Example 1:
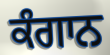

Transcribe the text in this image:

ਕੰਗਾਨ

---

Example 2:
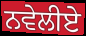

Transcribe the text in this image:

ਨਵੇਲੀਏ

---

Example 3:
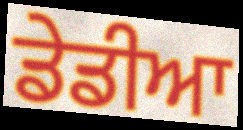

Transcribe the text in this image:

ਡੇਡੀਆ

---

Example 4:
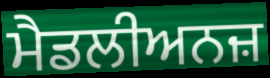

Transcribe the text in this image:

ਮੈਡਲੀਅਨਜ਼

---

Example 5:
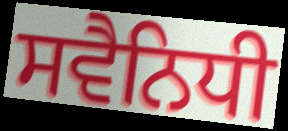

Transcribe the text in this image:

ਸਵੈਨਿਧੀ